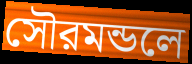
সৌরমন্ডলে